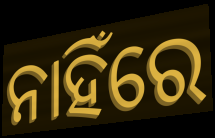
ନାହିଁରେ